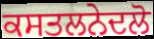
ਕਸਤਲਨੇਦਲੋ